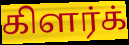
கிளர்க்